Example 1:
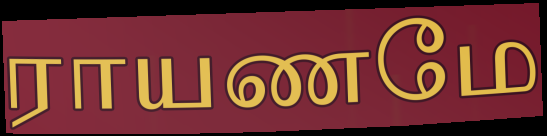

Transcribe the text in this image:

ராயணமே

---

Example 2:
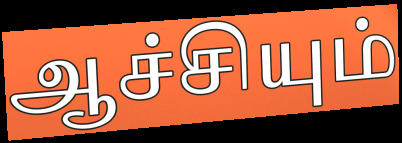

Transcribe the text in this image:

ஆச்சியும்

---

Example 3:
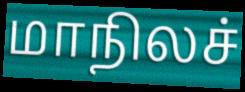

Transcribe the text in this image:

மாநிலச்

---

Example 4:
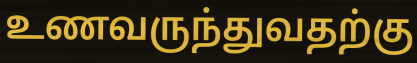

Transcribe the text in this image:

உணவருந்துவதற்கு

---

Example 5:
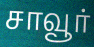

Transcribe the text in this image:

சாவூர்